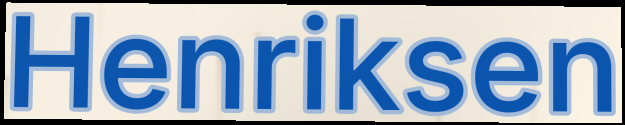
Henriksen